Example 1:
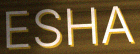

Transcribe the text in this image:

ESHA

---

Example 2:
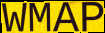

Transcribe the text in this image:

WMAP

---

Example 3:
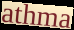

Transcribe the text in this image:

athma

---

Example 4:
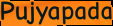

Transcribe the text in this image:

Pujyapada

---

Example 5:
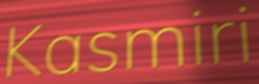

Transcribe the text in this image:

Kasmiri